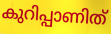
കുറിപ്പാണിത്